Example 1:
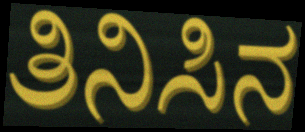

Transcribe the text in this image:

ತಿನಿಸಿನ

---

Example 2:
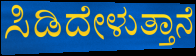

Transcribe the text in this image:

ಸಿಡಿದೇಳುತ್ತಾನೆ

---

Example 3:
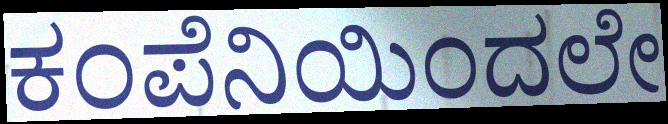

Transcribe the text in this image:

ಕಂಪೆನಿಯಿಂದಲೇ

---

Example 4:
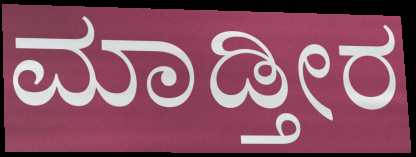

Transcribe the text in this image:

ಮಾಡ್ತೀರ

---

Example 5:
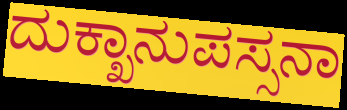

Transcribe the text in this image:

ದುಕ್ಖಾನುಪಸ್ಸನಾ